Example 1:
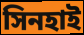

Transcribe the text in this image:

সিনহাই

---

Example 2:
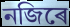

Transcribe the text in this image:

নজিৰে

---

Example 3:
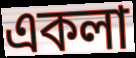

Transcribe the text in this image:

একলা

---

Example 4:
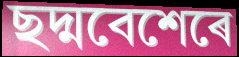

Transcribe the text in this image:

ছদ্মবেশেৰে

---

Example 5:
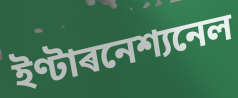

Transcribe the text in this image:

ইণ্টাৰনেশ্যনেল